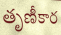
తృణీకార